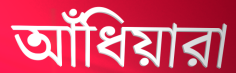
আঁধিয়ারা